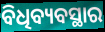
ବିଧିବ୍ୟବସ୍ଥାର